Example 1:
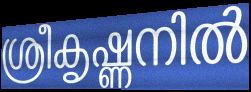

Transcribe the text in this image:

ശ്രീകൃഷ്ണനിൽ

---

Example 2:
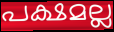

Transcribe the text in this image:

പക്ഷമല്ല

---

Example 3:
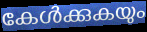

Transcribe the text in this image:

കേൾക്കുകയും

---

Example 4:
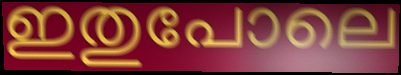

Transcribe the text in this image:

ഇതുപോലെ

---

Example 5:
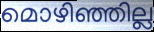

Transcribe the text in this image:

മൊഴിഞ്ഞില്ല